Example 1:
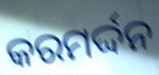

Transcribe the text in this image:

କରମର୍ଦ୍ଦନ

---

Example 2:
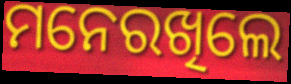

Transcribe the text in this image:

ମନେରଖିଲେ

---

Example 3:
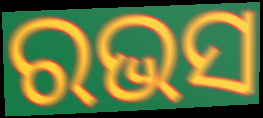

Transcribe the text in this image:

ରଭସ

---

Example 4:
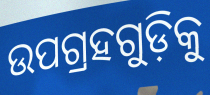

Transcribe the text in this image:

ଉପଗ୍ରହଗୁଡ଼ିକୁ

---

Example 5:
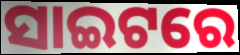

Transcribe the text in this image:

ସାଇଟରେ